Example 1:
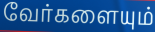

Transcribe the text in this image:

வேர்களையும்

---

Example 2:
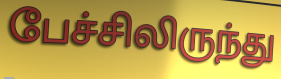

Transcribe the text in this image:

பேச்சிலிருந்து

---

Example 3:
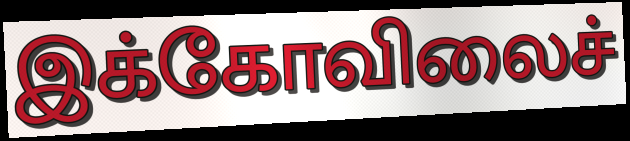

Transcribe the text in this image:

இக்கோவிலைச்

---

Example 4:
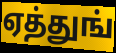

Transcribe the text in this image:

ஏத்துங்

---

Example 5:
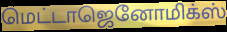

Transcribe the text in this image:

மெட்டாஜெனோமிக்ஸ்